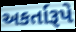
અકર્તારૂપે